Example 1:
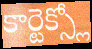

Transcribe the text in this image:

కార్టెక్స్లో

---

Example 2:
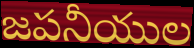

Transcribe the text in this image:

జపనీయుల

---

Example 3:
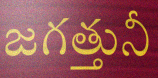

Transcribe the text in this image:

జగత్తునీ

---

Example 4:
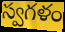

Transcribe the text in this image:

స్వగళం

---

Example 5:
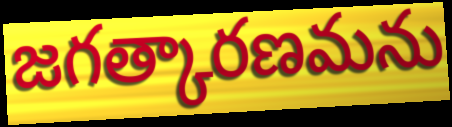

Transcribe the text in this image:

జగత్కారణమను